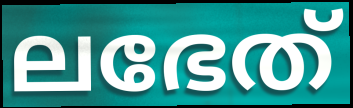
ലഭേത്